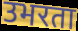
उभरता